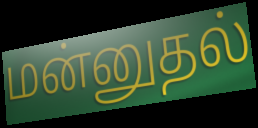
மன்னுதல்